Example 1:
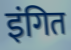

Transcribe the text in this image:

इंगित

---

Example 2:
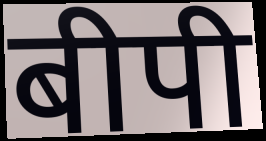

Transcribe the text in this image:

बीपी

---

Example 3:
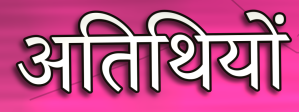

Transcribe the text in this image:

अतिथियों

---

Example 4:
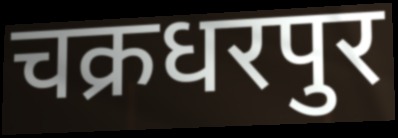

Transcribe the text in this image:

चक्रधरपुर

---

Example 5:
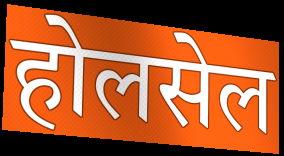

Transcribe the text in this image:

होलसेल